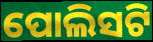
ପୋଲିସଟି